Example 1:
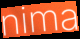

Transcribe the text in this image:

nima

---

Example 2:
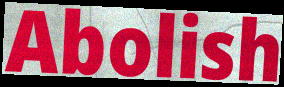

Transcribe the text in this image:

Abolish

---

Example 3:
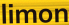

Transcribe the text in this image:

limon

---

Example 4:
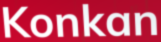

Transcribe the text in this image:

Konkan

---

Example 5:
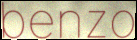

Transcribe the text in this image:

benzo